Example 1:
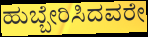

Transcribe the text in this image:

ಹುಬ್ಬೇರಿಸಿದವರೇ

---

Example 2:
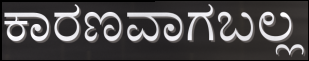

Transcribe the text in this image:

ಕಾರಣವಾಗಬಲ್ಲ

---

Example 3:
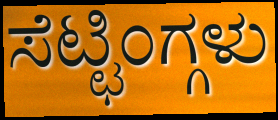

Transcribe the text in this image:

ಸೆಟ್ಟಿಂಗ್ಗಳು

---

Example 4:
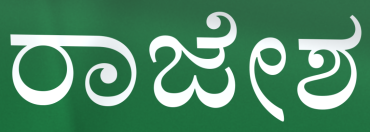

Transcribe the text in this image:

ರಾಜೇಶ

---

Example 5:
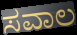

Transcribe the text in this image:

ಸವಾಲ